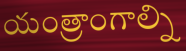
యంత్రాంగాల్ని